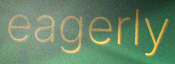
eagerly